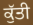
ਕੁੱਤੀ